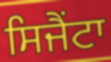
ਸਿਜੈਂਟਾ